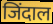
जिंदाल